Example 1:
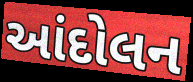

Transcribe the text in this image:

આંદોલન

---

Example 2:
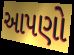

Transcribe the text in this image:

આપણો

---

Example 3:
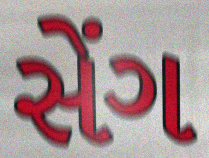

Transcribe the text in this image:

સેંગ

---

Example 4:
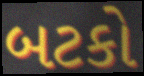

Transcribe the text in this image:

બટકો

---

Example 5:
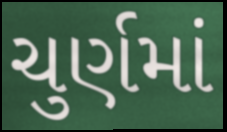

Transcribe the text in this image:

ચુર્ણમાં